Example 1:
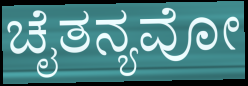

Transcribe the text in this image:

ಚೈತನ್ಯವೋ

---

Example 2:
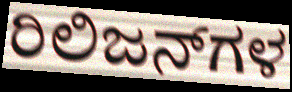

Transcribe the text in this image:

ರಿಲಿಜನ್‌ಗಳ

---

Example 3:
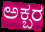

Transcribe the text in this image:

ಅಕ್ಬರ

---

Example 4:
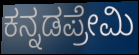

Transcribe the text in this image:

ಕನ್ನಡಪ್ರೇಮಿ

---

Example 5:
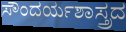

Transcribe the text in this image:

ಸೌಂದರ್ಯಶಾಸ್ತ್ರದ